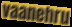
vaanehru